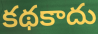
కథకాదు